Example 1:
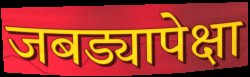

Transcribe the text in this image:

जबड्यापेक्षा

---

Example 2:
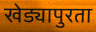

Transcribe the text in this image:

खेड्यापुरता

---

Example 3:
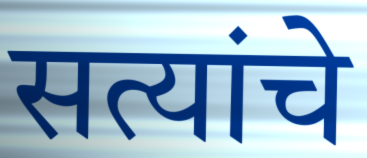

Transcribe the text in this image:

सत्यांचे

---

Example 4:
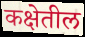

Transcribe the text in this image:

कक्षेतील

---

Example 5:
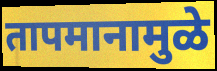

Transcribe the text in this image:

तापमानामुळे